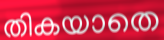
തികയാതെ